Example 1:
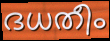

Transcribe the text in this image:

ദധതീം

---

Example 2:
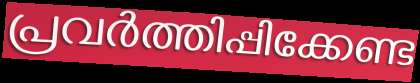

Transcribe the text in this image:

പ്രവർത്തിപ്പിക്കേണ്ട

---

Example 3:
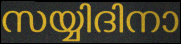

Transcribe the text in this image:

സയ്യിദിനാ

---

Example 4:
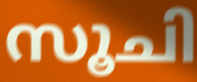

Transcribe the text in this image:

സൂചി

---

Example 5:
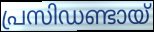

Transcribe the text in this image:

പ്രസിഡണ്ടായ്